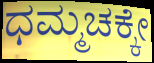
ಧಮ್ಮಚಕ್ಕೇ